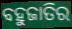
ବହୁଜାତିର